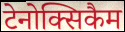
टेनोक्सिकैम